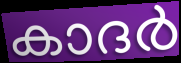
കാദർ